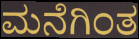
ಮನೆಗಿಂತ